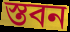
স্তবন